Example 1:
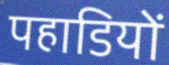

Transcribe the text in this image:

पहाडियों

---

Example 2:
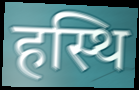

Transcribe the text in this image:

हस्थि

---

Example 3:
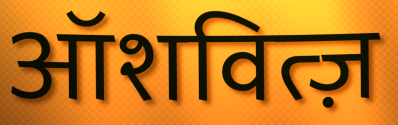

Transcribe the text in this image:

ऑशवित्ज़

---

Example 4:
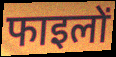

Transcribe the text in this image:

फाइलों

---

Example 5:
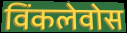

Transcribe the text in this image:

विंकलेवोस